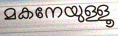
മകനേയുള്ളൂ